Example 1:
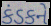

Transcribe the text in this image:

કંડકને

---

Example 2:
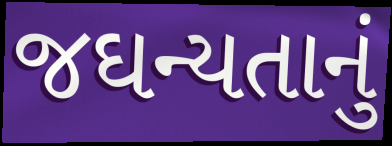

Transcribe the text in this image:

જઘન્યતાનું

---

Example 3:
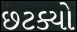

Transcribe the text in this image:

છટક્યો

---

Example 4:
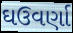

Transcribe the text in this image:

ઘઉવર્ણા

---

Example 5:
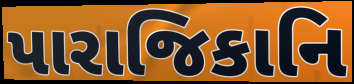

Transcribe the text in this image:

પારાજિકાનિ